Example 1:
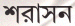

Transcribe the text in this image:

শরাসন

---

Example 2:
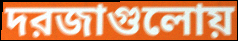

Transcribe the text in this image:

দরজাগুলোয়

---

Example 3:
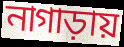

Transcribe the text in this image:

নাগাড়ায়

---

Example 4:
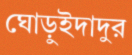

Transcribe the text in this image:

ঘোড়ুইদাদুর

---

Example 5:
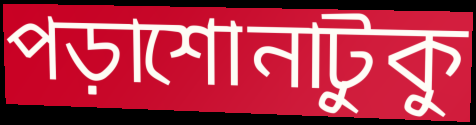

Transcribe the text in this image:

পড়াশোনাটুকু